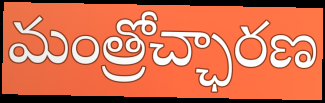
మంత్రోచ్ఛారణ